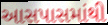
આસપાસમાંથી